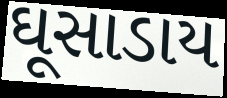
ઘૂસાડાય